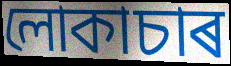
লোকাচাৰ